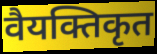
वैयक्तिकृत